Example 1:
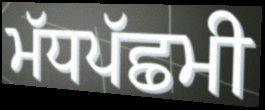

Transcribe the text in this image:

ਮੱਧਪੱਛਮੀ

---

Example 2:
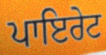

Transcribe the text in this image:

ਪਾਇਰੇਟ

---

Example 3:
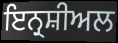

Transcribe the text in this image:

ਇਨ੍ਰਸ਼ੀਅਲ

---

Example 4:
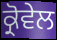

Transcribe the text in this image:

ਕ੍ਰੋਵੇਲ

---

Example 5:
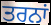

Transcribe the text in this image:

ਤਰਨਾਂ